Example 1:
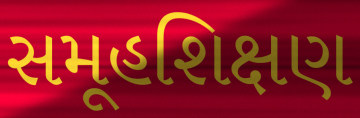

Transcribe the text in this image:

સમૂહશિક્ષણ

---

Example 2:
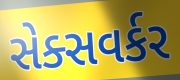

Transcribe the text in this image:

સેક્સવર્કર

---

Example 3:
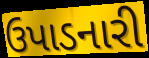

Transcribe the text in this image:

ઉપાડનારી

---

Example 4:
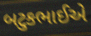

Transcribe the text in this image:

બટુકભાઈએ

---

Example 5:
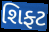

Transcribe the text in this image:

શિફ્ટ